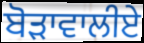
ਬੋੜਾਵਾਲੀਏ